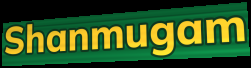
Shanmugam